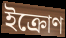
ইক্রোণ